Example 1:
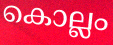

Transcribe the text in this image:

കൊല്ലം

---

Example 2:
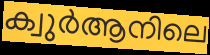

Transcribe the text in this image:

ക്വുർആനിലെ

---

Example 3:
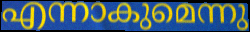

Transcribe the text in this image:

എന്നാകുമെന്നു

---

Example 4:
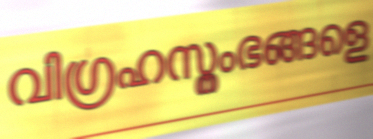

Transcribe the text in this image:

വിഗ്രഹസ്തംഭങ്ങളെ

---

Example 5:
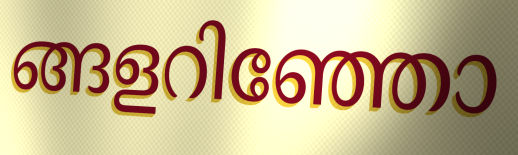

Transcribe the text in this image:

ങ്ങളറിഞ്ഞോ